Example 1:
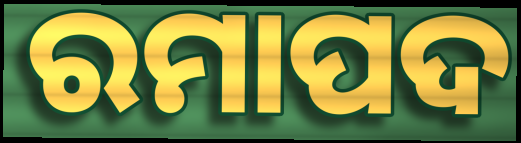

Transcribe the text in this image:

ରମାପଦ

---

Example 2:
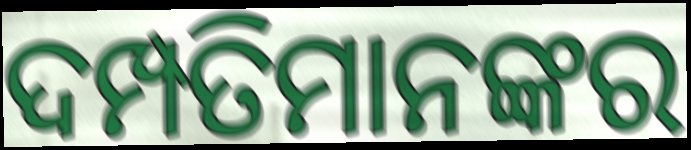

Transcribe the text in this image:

ଦମ୍ପତିମାନଙ୍କର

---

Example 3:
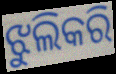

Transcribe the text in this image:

ଝୁଲିକରି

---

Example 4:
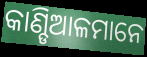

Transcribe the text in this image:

କାଣ୍ଡିଆଳମାନେ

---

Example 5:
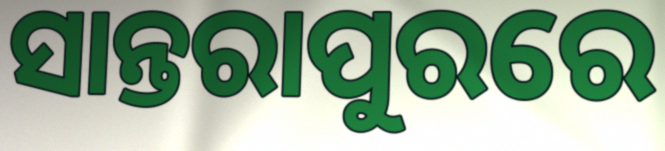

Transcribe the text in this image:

ସାନ୍ତରାପୁରରେ